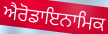
ਐਰੋਡਾਇਨਾਮਿਕ